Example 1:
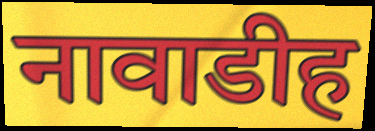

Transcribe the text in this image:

नावाडीह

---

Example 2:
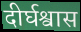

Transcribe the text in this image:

दीर्घश्वास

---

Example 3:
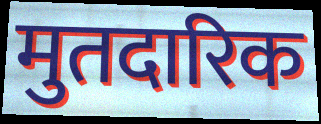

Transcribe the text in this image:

मुतदारिक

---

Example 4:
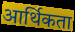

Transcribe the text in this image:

आर्थिकता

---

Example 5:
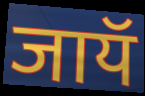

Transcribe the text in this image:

जायॅ